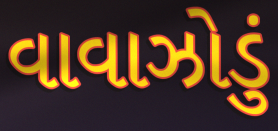
વાવાઝોડું